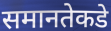
समानतेकडे